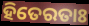
ହିତେରତାଃ